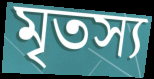
মৃতস্য